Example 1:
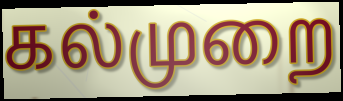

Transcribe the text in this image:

கல்முறை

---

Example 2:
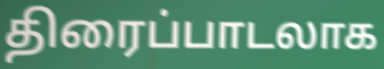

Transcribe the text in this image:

திரைப்பாடலாக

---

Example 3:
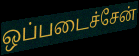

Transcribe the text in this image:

ஒப்படைச்சேன்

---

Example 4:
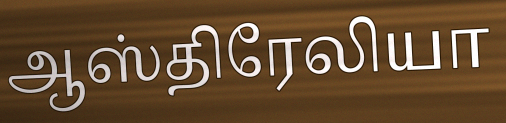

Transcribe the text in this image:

ஆஸ்திரேலியா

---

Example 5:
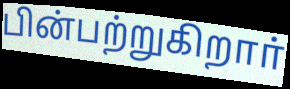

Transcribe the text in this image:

பின்பற்றுகிறார்